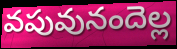
వపువునందెల్ల